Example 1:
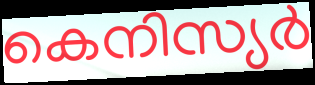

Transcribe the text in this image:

കെനിസ്യർ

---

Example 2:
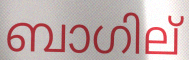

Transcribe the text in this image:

ബാഗില്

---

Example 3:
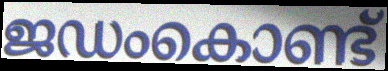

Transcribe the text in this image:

ജഡംകൊണ്ട്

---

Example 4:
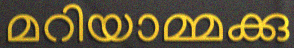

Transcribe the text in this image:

മറിയാമ്മക്കു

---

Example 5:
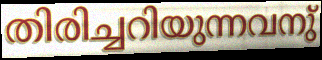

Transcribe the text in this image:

തിരിച്ചറിയുന്നവനു്